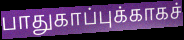
பாதுகாப்புக்காகச்